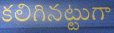
కలిగినట్టుగా